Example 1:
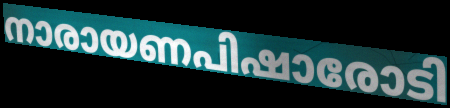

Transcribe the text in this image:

നാരായണപിഷാരോടി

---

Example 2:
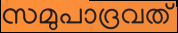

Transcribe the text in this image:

സമുപാദ്രവത്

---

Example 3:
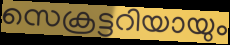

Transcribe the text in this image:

സെക്രട്ടറിയായും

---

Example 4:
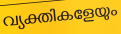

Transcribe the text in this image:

വ്യക്തികളേയും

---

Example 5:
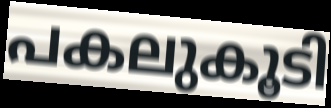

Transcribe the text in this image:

പകലുകൂടി